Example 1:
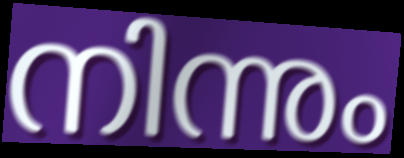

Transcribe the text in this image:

നിന്നും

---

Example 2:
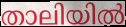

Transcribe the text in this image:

താലിയിൽ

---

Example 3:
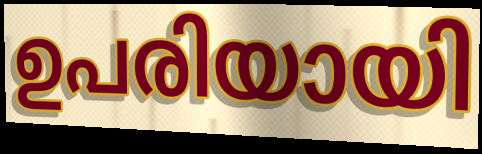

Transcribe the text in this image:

ഉപരിയായി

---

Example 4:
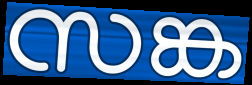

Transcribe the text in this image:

സങ്ക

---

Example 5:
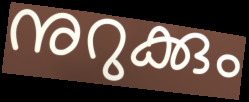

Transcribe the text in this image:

നുറുക്കും